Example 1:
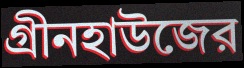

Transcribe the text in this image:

গ্রীনহাউজের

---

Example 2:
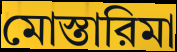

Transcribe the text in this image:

মোস্তারিমা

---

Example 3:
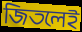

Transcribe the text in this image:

জিতলেই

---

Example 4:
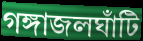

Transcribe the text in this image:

গঙ্গাজলঘাঁটি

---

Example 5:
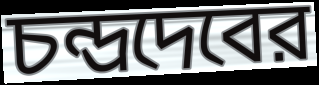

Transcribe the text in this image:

চন্দ্রদেবের